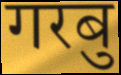
गरबु